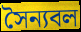
সৈন্যবল